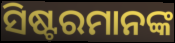
ସିଷ୍ଟରମାନଙ୍କ